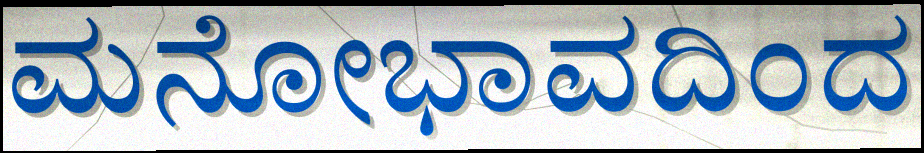
ಮನೋಭಾವದಿಂದ